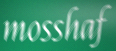
mosshaf